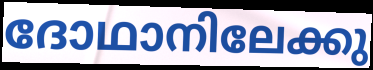
ദോഥാനിലേക്കു